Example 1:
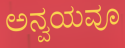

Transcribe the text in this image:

ಅನ್ವಯವೂ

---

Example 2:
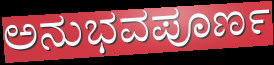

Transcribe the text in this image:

ಅನುಭವಪೂರ್ಣ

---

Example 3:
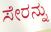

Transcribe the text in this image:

ಸೇರನ್ನು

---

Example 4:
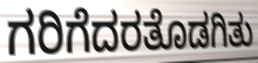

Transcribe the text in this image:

ಗರಿಗೆದರತೊಡಗಿತು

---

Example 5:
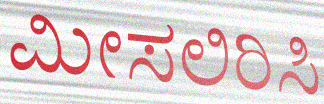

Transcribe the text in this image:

ಮೀಸಲಿರಿಸಿ